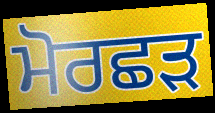
ਮੋਰਛੜ